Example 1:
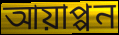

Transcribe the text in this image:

আয়াপ্পন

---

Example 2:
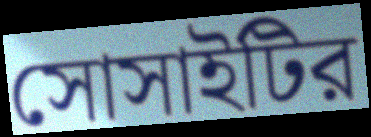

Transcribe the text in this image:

সোসাইটির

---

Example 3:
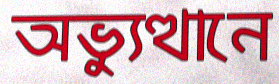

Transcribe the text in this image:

অভ্যুত্থানে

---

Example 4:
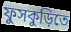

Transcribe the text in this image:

ফুসকুড়িতে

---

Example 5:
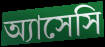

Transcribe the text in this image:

অ্যাসেসি